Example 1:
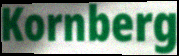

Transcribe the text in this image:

Kornberg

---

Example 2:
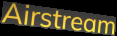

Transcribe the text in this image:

Airstream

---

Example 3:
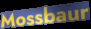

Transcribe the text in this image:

Mossbaur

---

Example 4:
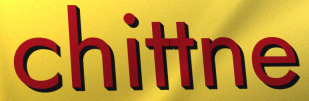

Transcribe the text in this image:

chittne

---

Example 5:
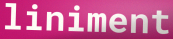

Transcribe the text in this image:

liniment